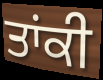
ਤਾਂਕੀ